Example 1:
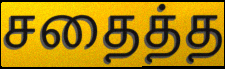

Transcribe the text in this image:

சதைத்த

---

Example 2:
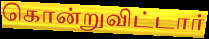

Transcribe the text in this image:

கொன்றுவிட்டார்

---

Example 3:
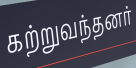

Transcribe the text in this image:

கற்றுவந்தனர்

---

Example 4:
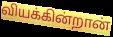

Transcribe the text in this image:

வியக்கின்றான்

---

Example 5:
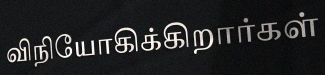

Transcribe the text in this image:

விநியோகிக்கிறார்கள்